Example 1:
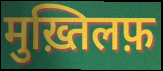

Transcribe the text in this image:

मुख़्तिलफ़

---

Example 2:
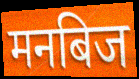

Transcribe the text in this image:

मनबिज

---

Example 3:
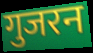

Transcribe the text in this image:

गुजरन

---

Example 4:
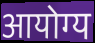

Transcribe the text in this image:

आयोग्य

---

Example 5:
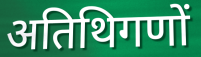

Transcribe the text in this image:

अतिथिगणों